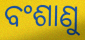
ବଂଶାଣୁ